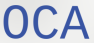
OCA